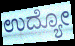
ಉದ್ಯೋ